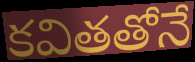
కవితతోనే